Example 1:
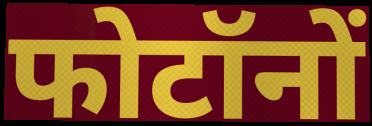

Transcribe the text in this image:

फोटॉनों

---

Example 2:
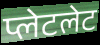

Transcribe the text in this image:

प्लेटलेट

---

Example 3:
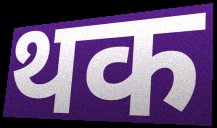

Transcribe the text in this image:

थक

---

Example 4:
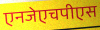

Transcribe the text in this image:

एनजेएचपीएस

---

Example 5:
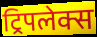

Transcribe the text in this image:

ट्रिपलेक्स